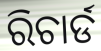
ରିଚାର୍ଡ